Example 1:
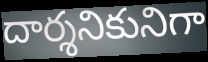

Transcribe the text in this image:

దార్శనికునిగా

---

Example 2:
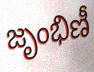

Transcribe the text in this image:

జృంభిణీ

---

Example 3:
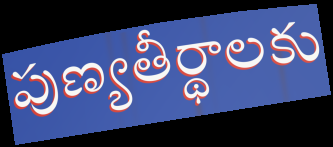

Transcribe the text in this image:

పుణ్యతీర్థాలకు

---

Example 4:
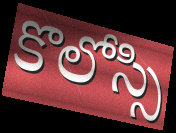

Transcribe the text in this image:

కొలోస్సి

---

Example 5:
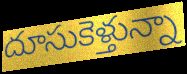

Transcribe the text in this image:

దూసుకెళ్తున్నా